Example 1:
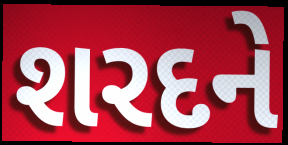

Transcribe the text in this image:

શરદને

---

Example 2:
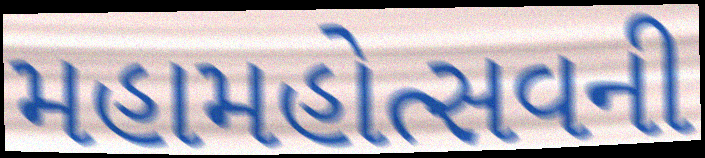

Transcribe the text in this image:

મહામહોત્સવની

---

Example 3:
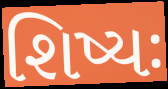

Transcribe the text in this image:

શિષ્યઃ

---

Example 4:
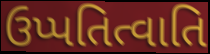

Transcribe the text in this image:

ઉપ્પતિત્વાતિ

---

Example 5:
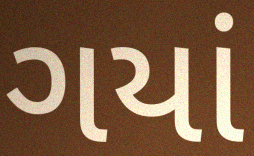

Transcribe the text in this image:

ગયાં